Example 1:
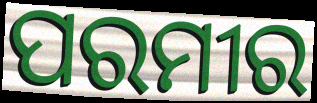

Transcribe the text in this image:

ପରମୀର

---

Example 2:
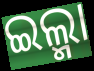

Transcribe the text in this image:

ଇଲ୍ମା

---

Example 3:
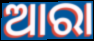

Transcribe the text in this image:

ଆରା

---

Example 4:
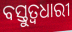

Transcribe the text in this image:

ବସ୍ତୁତ୍ୱଧାରୀ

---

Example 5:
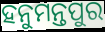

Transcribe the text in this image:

ହନୁମନ୍ତପୁର